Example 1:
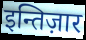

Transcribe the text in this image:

इन्तिज़ार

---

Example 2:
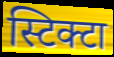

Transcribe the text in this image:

स्टिक्टा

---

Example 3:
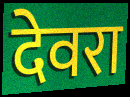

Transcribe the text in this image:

देवरा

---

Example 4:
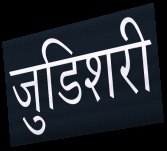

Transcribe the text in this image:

जुडिशरी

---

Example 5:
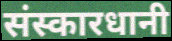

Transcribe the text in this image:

संस्कारधानी